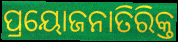
ପ୍ରୟୋଜନାତିରିକ୍ତ